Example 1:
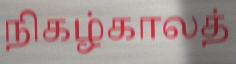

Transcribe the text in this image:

நிகழ்காலத்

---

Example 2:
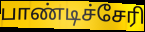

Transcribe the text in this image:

பாண்டிச்சேரி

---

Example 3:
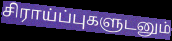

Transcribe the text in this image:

சிராய்ப்புகளுடனும்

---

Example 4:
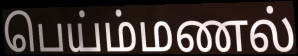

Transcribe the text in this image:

பெய்ம்மணல்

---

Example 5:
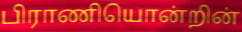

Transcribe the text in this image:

பிராணியொன்றின்